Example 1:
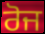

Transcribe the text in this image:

ਰੋਜ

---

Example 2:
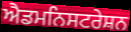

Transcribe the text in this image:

ਐਡਮਨਿਸਟਰੇਸ਼ਨ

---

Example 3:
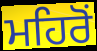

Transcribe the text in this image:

ਮਹਿਰੋਂ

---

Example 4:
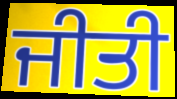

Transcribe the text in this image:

ਜੀਤੀ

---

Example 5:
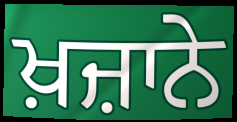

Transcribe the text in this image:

ਖ਼ਜ਼ਾਨੇ